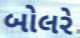
બોલરે